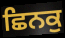
ਛਿਨਕੁ